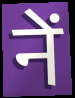
नें